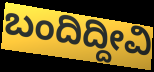
ಬಂದಿದ್ದೀವಿ